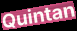
Quintan